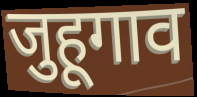
जुहूगाव